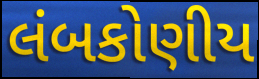
લંબકોણીય